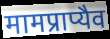
मामप्राप्यैव